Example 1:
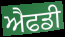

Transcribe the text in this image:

ਐਫਡੀ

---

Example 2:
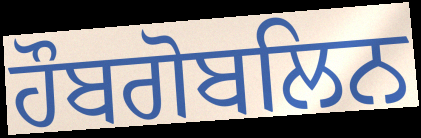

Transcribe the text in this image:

ਹੌਬਗੋਬਲਿਨ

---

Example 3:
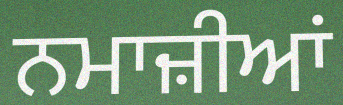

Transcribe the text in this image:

ਨਮਾਜ਼ੀਆਂ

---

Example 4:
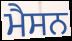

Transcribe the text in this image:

ਮੈਸਨ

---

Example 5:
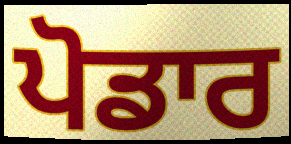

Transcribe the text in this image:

ਪੋਡਾਰ